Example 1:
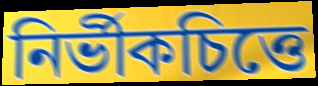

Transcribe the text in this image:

নির্ভীকচিত্তে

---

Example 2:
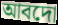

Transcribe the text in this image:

আবদো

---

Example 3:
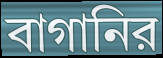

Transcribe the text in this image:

বাগানির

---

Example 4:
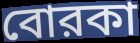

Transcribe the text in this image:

বোরকা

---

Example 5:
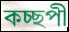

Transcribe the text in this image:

কচ্ছপী